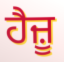
ਹੈਜ਼ੂ